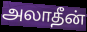
அலாதீன்